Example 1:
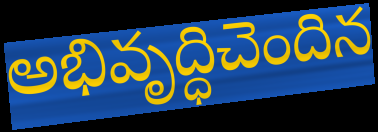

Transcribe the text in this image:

అభివృద్ధిచెందిన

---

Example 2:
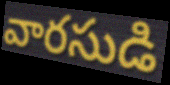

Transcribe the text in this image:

వారసుడి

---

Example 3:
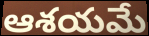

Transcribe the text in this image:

ఆశయమే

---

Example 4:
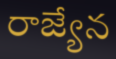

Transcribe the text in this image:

రాజ్యేన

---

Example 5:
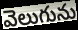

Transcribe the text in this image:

వెలుగును